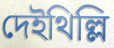
দেইথিল্লি